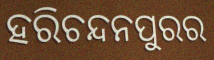
ହରିଚନ୍ଦନପୁରର